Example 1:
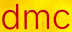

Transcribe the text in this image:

dmc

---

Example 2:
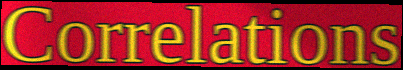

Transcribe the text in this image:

Correlations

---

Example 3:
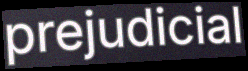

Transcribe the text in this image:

prejudicial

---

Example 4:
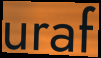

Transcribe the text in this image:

uraf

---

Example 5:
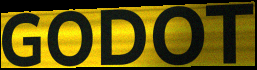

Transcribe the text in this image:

GODOT